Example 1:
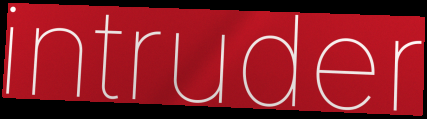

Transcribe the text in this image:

intruder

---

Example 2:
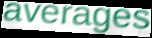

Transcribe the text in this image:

averages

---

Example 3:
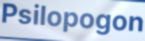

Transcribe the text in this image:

Psilopogon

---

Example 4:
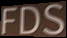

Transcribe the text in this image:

FDS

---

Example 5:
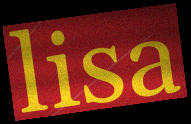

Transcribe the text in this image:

lisa